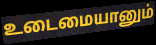
உடைமையானும்